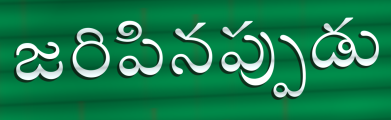
జరిపినప్పుడు